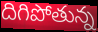
దిగిపోతున్న